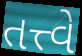
તત્ત્વે